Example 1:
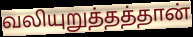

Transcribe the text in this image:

வலியுறுத்தத்தான்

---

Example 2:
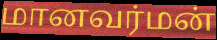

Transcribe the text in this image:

மானவர்மன்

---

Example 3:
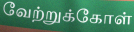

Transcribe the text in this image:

வேற்றுக்கோள்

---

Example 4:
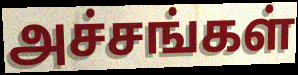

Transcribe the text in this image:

அச்சங்கள்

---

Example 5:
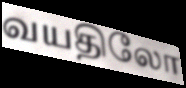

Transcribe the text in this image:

வயதிலோ